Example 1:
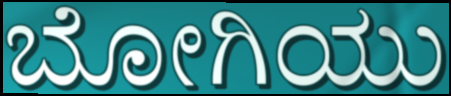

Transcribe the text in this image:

ಬೋಗಿಯು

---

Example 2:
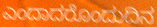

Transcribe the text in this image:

ಎಂದಾದರೊಂದುದಿನ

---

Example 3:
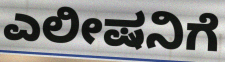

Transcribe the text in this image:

ಎಲೀಷನಿಗೆ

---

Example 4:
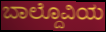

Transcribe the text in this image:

ಬಾಲ್ದೊವಿಯ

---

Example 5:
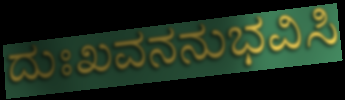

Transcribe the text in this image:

ದುಃಖವನನುಭವಿಸಿ